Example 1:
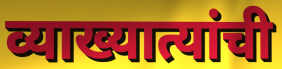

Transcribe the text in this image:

व्याख्यात्यांची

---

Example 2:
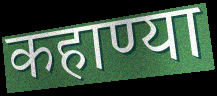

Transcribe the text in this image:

कहाण्या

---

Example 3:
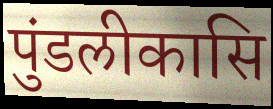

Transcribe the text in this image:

पुंडलीकासि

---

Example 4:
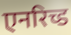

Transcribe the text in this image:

एनरिच्ड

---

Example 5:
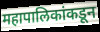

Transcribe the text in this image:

महापालिकांकडून